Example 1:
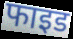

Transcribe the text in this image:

फाइड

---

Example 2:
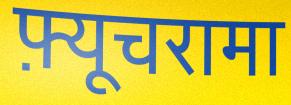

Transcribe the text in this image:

फ़्यूचरामा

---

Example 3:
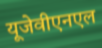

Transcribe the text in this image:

यूजेवीएनएल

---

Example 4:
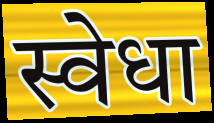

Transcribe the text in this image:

स्वेधा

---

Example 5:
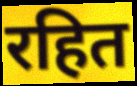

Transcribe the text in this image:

रहित